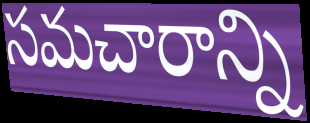
సమచారాన్ని